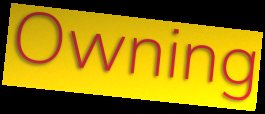
Owning